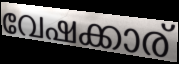
വേഷക്കാര്